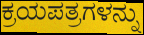
ಕ್ರಯಪತ್ರಗಳನ್ನು